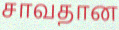
சாவதான